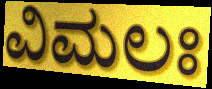
ವಿಮಲಃ